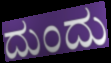
ದುಂದು